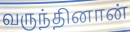
வருந்தினான்